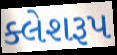
ક્લેશરૂપ